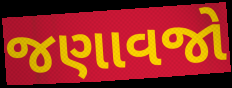
જણાવજો